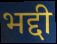
भद्दी